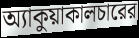
অ্যাকুয়াকালচারের